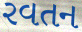
રવતન